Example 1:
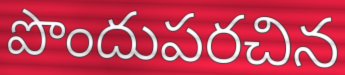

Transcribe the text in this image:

పొందుపరచిన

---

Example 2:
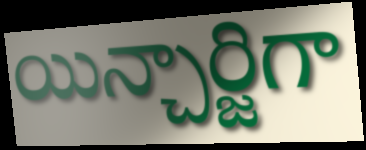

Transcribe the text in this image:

యిన్చార్జిగా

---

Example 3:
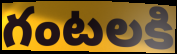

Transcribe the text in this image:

గంటలకి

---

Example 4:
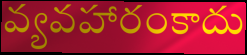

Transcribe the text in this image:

వ్యవహారంకాదు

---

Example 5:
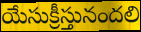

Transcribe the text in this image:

యేసుక్రీస్తునందలి